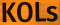
KOLs